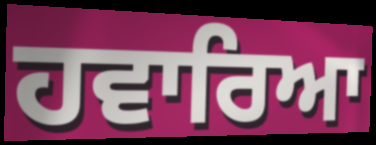
ਹਵਾਰਿਆ